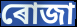
ৰোজা